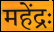
महेंद्रः